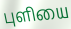
புளியை